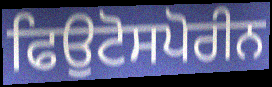
ਫਿਉਟੋਸਪੋਰੀਨ